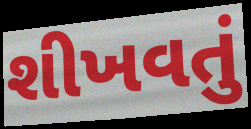
શીખવતું